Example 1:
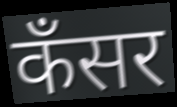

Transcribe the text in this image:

कँसर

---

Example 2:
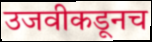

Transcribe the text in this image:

उजवीकडूनच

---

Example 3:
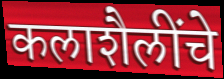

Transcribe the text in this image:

कलाशैलींचे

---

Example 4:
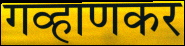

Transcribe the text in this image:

गव्हाणकर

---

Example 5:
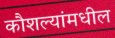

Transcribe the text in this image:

कौशल्यांमधील